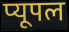
प्यूपल